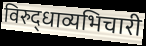
विरुद्धाव्यभिचारी